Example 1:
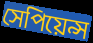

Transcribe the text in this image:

সেপিয়েন্স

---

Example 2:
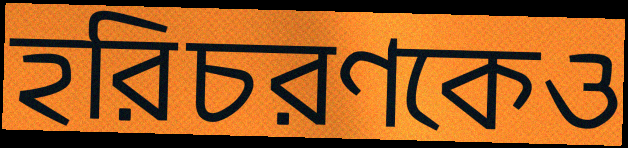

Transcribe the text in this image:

হরিচরণকেও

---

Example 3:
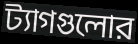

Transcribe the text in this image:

ট্যাগগুলোর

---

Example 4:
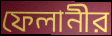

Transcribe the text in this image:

ফেলানীর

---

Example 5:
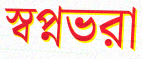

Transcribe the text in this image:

স্বপ্নভরা